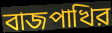
বাজপাখির